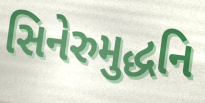
સિનેરુમુદ્ધનિ